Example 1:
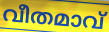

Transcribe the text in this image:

വീതമാവ്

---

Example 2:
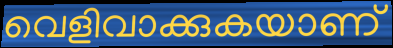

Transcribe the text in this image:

വെളിവാക്കുകയാണ്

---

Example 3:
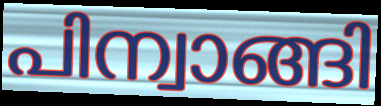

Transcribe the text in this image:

പിന്വാങ്ങി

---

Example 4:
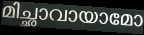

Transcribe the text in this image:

മിച്ഛാവായാമോ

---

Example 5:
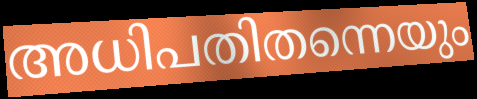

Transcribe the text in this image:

അധിപതിതന്നെയും